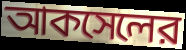
আকসেলের